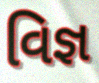
વિજ્ઞ